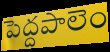
పెద్దపాలెం